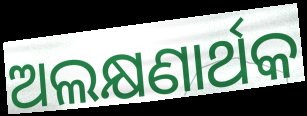
ଅଲକ୍ଷଣାର୍ଥକ